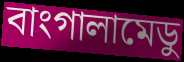
বাংগালামেডু